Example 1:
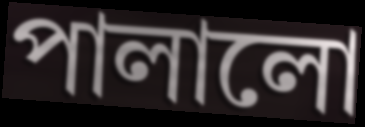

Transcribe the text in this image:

পালালো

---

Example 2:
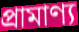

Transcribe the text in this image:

প্রামাণ্য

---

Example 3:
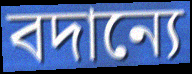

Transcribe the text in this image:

বদান্যে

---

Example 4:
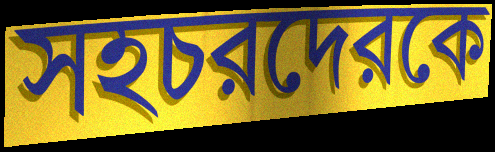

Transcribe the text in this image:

সহচরদেরকে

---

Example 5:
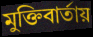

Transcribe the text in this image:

মুক্তিবার্তায়